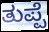
ತುಪ್ಪೆ